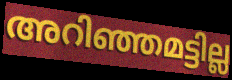
അറിഞ്ഞമട്ടില്ല